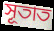
সূতাত